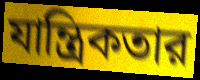
যান্ত্রিকতার